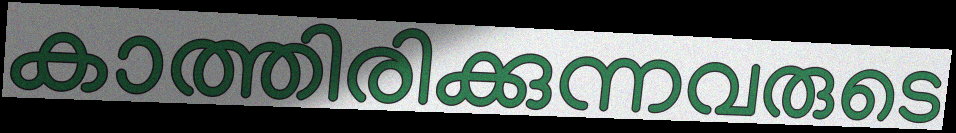
കാത്തിരിക്കുന്നവരുടെ